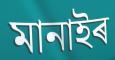
মানাইৰ